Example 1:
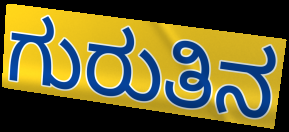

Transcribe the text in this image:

ಗುರುತಿನ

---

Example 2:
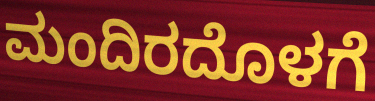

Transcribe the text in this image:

ಮಂದಿರದೊಳಗೆ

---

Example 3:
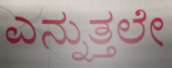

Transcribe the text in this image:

ಎನ್ನುತ್ತಲೇ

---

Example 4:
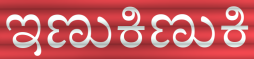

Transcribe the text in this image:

ಇಣುಕಿಣುಕಿ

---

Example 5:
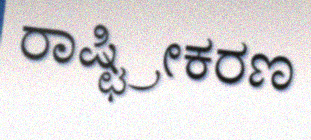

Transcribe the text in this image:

ರಾಷ್ಟ್ರೀಕರಣ